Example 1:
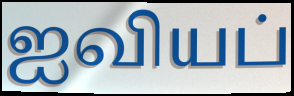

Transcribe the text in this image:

ஐவியப்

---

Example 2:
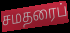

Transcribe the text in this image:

சமதரைப்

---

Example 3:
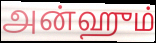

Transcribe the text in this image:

அன்ஹும்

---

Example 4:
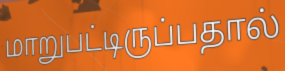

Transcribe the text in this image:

மாறுபட்டிருப்பதால்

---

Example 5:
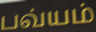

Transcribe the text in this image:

பவ்யம்